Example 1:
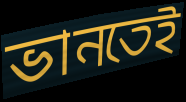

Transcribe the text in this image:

ভানতেই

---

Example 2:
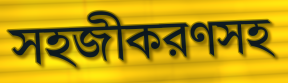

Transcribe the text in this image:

সহজীকরণসহ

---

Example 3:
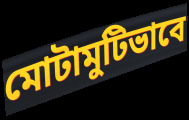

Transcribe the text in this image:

মোটামুটিভাবে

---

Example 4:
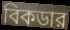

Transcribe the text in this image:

বিকডার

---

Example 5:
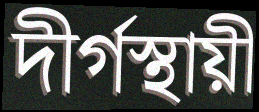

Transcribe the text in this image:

দীর্গস্থায়ী